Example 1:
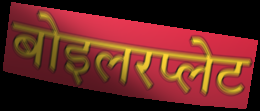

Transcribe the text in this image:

बोइलरप्लेट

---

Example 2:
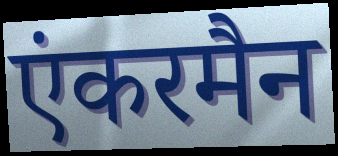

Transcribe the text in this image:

एंकरमैन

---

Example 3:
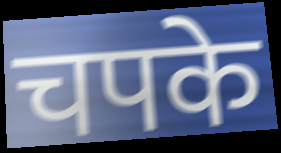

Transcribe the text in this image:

चपके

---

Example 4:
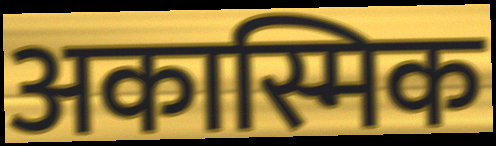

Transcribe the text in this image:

अकास्मिक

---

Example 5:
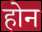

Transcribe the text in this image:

होन